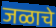
जळाचे